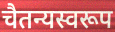
चैतन्यस्वरूप